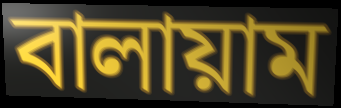
বালায়াম